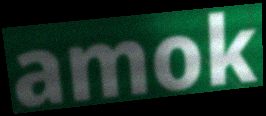
amok